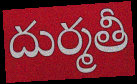
దుర్మతీ